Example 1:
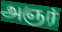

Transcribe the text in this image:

அஞர்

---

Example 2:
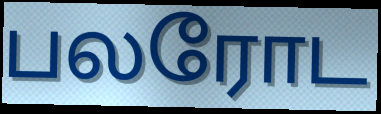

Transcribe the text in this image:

பலரோட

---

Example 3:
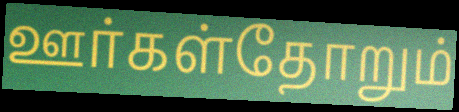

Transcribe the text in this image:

ஊர்கள்தோறும்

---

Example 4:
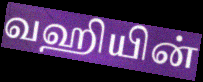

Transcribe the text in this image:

வஹியின்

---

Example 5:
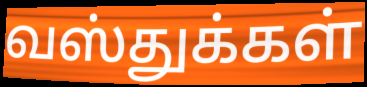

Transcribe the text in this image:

வஸ்துக்கள்